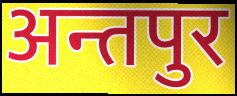
अन्तपुर